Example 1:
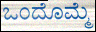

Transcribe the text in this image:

ಒಂದೊಮ್ಮೆ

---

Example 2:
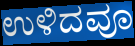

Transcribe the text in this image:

ಉಳಿದವೂ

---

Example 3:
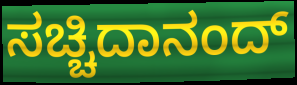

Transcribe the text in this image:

ಸಚ್ಚಿದಾನಂದ್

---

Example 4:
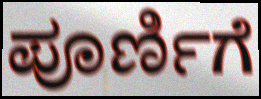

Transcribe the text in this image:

ಪೂರ್ಣಿಗೆ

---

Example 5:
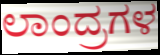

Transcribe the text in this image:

ಲಾಂದ್ರಗಳ